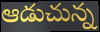
ఆడుచున్న